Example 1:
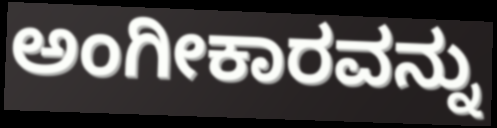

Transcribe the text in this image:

ಅಂಗೀಕಾರವನ್ನು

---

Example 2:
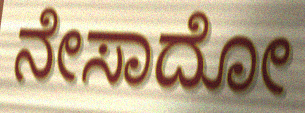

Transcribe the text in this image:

ನೇಸಾದೋ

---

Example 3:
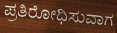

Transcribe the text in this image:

ಪ್ರತಿರೋಧಿಸುವಾಗ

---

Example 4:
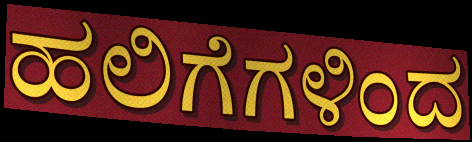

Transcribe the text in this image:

ಹಲಿಗೆಗಳಿಂದ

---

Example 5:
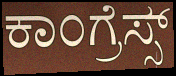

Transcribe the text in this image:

ಕಾಂಗ್ರೆಸ್ಸ್